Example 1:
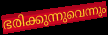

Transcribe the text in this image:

ഭരിക്കുന്നുവെന്നും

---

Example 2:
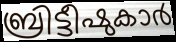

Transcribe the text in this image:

ബ്രിട്ടീഷുകാർ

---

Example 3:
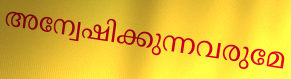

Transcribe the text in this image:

അന്വേഷിക്കുന്നവരുമേ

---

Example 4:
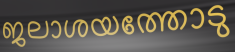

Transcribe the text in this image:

ജലാശയത്തോടു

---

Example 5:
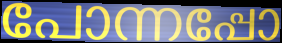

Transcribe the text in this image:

പോന്നപ്പോ